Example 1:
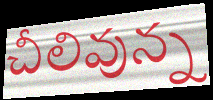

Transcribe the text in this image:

చీలివున్న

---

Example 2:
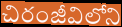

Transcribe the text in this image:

చిరంజీవిలోని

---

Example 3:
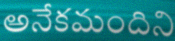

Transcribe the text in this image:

అనేకమందిని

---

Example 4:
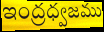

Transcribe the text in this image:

ఇంద్రధ్వజము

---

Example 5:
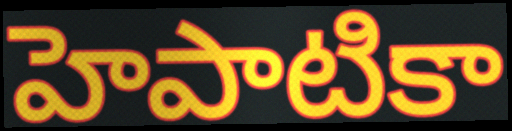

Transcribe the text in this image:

హెపాటికా